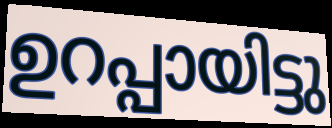
ഉറപ്പായിട്ടു